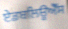
ਏਡਬਲਿਊਐੱਸ